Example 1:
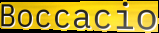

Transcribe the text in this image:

Boccacio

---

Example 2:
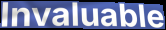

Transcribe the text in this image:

Invaluable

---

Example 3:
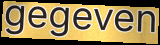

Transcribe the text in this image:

gegeven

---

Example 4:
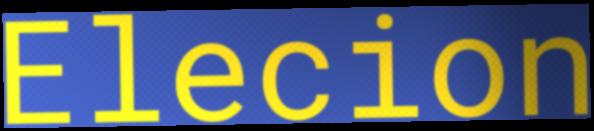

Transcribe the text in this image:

Elecion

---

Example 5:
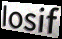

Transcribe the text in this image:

Iosif